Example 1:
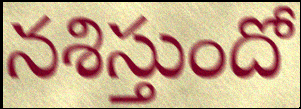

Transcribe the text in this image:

నశిస్తుందో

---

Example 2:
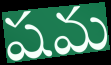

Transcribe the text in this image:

షమ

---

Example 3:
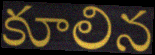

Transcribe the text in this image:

కూలిన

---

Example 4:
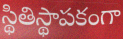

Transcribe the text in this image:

స్థితిస్థాపకంగా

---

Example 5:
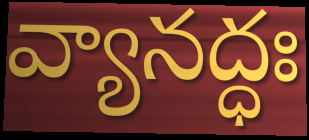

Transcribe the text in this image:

వ్యానద్ధః